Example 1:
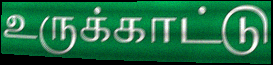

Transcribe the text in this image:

உருக்காட்டு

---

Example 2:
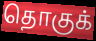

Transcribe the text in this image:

தொகுக்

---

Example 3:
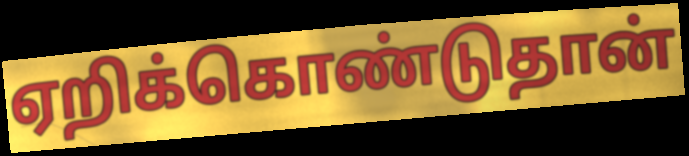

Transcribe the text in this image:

ஏறிக்கொண்டுதான்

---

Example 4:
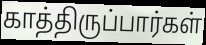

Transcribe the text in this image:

காத்திருப்பார்கள்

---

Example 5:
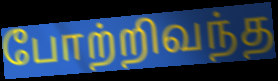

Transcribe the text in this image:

போற்றிவந்த